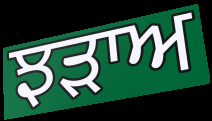
ਝੜਾਅ